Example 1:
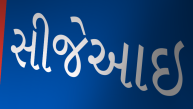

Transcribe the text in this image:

સીજેઆઇ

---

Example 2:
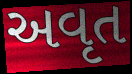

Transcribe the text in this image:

અવૃત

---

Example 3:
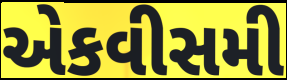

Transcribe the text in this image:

એકવીસમી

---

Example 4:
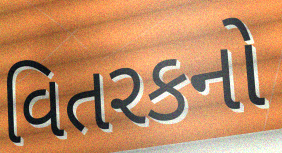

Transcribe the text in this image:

વિતરકનો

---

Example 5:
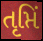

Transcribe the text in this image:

તૃપ્તિં